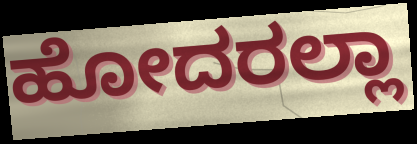
ಹೋದರಲ್ಲಾ